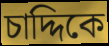
চাদ্দিকে